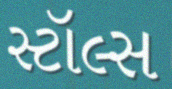
સ્ટૉલ્સ